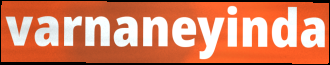
varnaneyinda